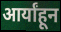
आर्यांहून